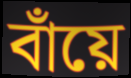
বাঁয়ে